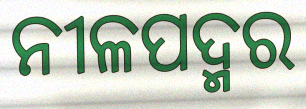
ନୀଳପଦ୍ମର